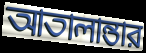
আতালান্তার